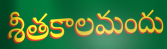
శీతకాలమందు